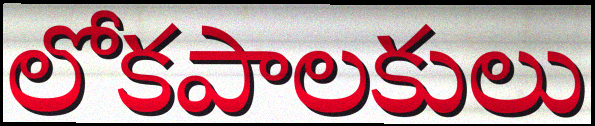
లోకపాలకులు